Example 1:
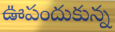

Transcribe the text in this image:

ఊపందుకున్న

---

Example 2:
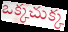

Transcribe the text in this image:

ఒక్కచుక్క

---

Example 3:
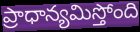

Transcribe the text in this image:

ప్రాధాన్యమిస్తోంది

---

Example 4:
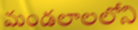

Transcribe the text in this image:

మండలాలలోని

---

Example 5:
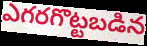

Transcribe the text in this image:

ఎగరగొట్టబడిన